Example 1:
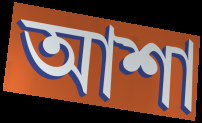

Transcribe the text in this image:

আশা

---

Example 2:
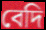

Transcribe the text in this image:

বেদি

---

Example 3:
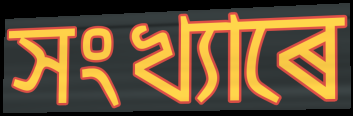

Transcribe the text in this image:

সংখ্যাৰে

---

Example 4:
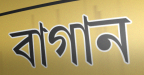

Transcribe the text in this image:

বাগান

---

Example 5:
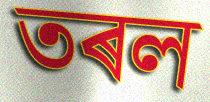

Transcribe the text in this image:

তৰল